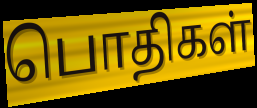
பொதிகள்